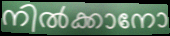
നിൽക്കാനോ